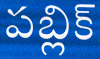
పబ్లిక్